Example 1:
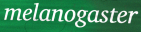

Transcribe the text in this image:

melanogaster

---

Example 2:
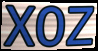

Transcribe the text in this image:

XOZ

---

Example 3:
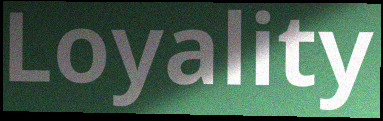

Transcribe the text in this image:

Loyality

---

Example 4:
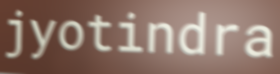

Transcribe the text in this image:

jyotindra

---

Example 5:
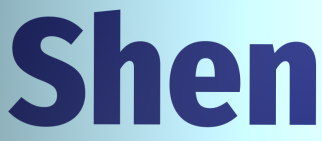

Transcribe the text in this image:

Shen